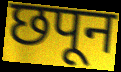
छपून